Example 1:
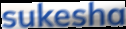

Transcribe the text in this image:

sukesha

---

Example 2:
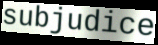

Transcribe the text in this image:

subjudice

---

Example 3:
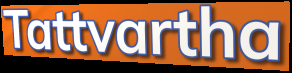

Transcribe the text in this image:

Tattvartha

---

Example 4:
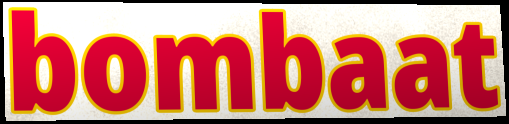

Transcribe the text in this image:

bombaat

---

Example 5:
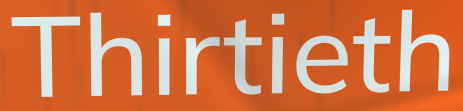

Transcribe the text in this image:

Thirtieth